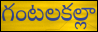
గంటలకల్లా